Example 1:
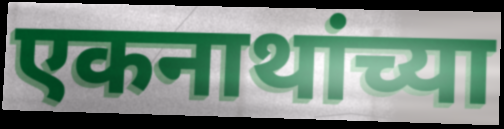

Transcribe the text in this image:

एकनाथांच्या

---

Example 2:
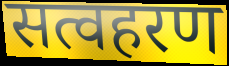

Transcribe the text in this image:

सत्वहरण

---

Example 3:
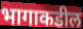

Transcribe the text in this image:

भागाकडील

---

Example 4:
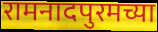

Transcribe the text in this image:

रामनादपुरमच्या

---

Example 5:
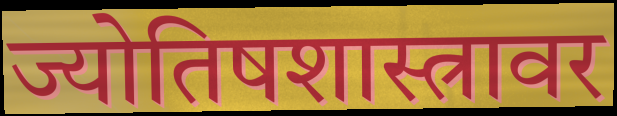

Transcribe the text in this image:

ज्योतिषशास्त्रावर